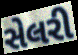
સેલરી